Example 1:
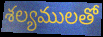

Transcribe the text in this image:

శల్యములతో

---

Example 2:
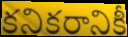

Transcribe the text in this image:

కనికరానికీ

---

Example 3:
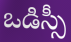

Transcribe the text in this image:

ఒడిస్సీ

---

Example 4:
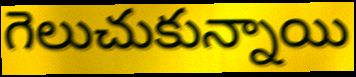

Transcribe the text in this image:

గెలుచుకున్నాయి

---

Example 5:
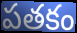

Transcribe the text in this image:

పతకం